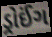
ડ્રોઈંગ